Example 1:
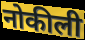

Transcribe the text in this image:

नोकीली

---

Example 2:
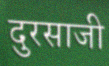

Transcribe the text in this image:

दुरसाजी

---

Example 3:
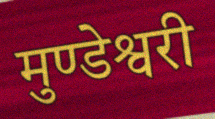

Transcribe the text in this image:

मुण्डेश्वरी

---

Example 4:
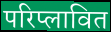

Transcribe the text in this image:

परिप्लावित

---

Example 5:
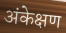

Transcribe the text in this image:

अंकेक्षण